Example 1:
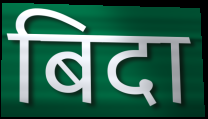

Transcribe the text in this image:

बिदा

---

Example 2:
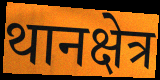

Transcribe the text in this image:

थानक्षेत्र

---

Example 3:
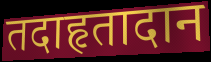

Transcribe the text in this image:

तदाहृतादान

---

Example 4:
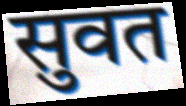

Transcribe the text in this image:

सुवत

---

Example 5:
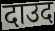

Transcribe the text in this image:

दाउद